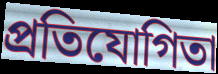
প্রতিযোগিতা